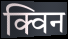
क्विन